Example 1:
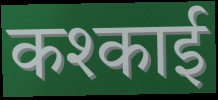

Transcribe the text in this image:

कश्काई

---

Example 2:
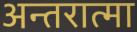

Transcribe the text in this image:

अन्तरात्मा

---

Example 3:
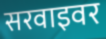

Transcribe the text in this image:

सरवाइवर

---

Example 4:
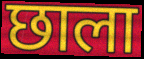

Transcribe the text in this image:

छाला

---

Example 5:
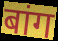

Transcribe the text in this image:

बांग